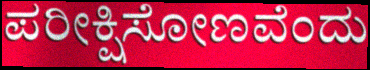
ಪರೀಕ್ಷಿಸೋಣವೆಂದು